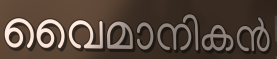
വൈമാനികൻ